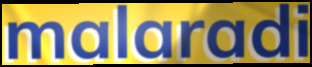
malaradi